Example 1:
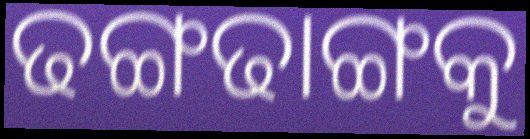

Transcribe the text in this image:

ଢଙ୍ଗଢାଙ୍ଗକୁ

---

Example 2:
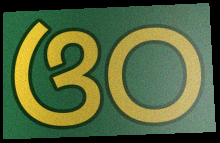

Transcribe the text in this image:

ଓଠ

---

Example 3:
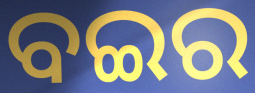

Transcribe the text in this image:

ବଇର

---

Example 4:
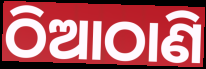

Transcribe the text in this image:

ଠିଆଠାଣି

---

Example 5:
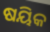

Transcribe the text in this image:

ଷୟିକ